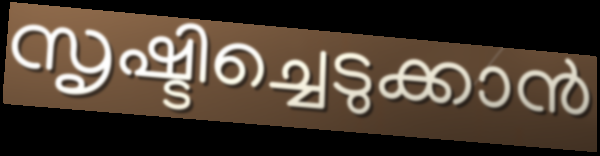
സൃഷ്ടിച്ചെടുക്കാൻ